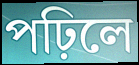
পঢ়িলে